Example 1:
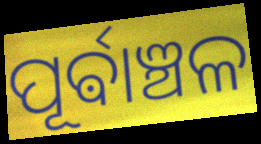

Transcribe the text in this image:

ପୂର୍ଵାଞ୍ଚଳ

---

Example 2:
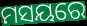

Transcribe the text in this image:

ମସୟରେ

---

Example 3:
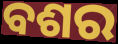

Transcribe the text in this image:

ବଶର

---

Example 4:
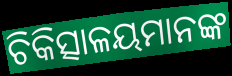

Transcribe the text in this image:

ଚିକିତ୍ସାଳୟମାନଙ୍କ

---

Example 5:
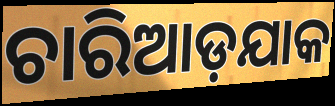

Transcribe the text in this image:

ଚାରିଆଡ଼ଯାକ